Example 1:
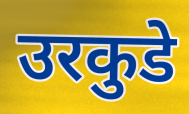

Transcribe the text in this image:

उरकुडे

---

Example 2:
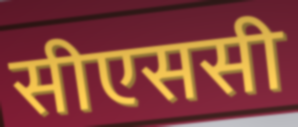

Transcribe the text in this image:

सीएससी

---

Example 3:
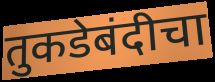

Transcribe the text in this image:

तुकडेबंदीचा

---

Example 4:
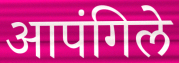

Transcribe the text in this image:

आपंगिले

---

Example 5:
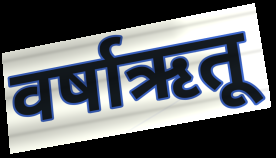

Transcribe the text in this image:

वर्षाऋतू